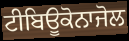
ਟੀਬਿਊਕੋਨਾਜੋਲ